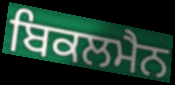
ਬਿਕਲਮੈਨ